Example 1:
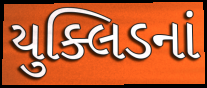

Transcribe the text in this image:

યુક્લિડનાં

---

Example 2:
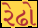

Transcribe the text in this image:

રેઢો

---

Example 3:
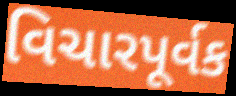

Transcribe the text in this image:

વિચારપૂર્વક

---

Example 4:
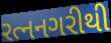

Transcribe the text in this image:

રત્નનગરીથી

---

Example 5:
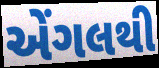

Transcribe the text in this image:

એંગલથી